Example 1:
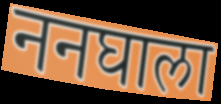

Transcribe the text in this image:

ननघाला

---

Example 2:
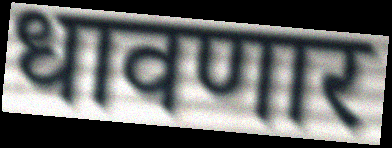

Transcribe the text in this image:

धावणार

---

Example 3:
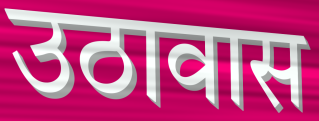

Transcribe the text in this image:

उठावास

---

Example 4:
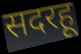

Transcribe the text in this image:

सदरहू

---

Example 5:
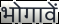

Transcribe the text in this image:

भोगावें